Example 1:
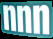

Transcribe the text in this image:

nnn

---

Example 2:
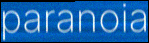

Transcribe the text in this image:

paranoia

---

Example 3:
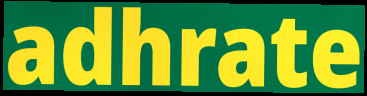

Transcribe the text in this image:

adhrate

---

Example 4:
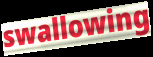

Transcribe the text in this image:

swallowing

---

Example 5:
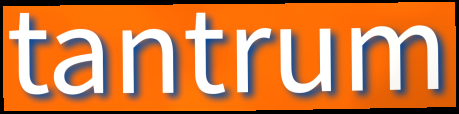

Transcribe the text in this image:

tantrum